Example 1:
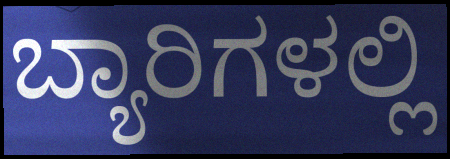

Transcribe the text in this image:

ಬ್ಯಾರಿಗಳಲ್ಲಿ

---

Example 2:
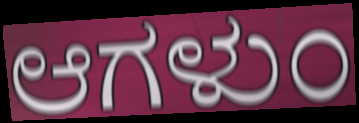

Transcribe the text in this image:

ಆಗಳುಂ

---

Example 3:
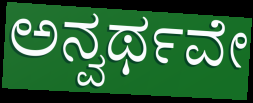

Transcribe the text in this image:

ಅನ್ವರ್ಥವೇ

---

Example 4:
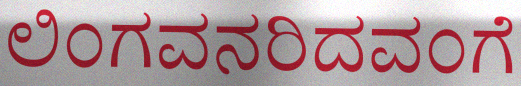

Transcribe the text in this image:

ಲಿಂಗವನರಿದವಂಗೆ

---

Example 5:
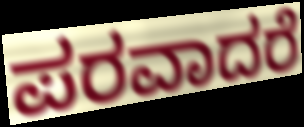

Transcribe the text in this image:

ಪರವಾದರೆ